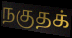
நகுதக்